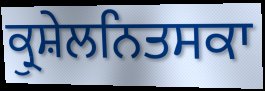
ਕ੍ਰੁਸ਼ੇਲਨਿਤਸਕਾ